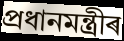
প্ৰধানমন্ত্ৰীৰ